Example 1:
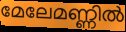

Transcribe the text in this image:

മേലേമണ്ണിൽ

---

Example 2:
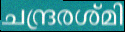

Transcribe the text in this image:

ചന്ദ്രരശ്മി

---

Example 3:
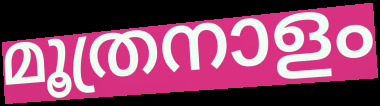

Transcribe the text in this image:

മൂത്രനാളം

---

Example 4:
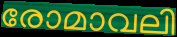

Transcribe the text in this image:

രോമാവലി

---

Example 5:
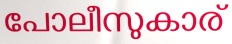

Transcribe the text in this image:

പോലീസുകാര്